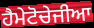
ਹੈਮੇਟੋਚੇਜੀਆ